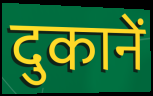
दुकानें